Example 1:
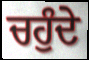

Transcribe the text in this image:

ਚਹੁੰਦੇ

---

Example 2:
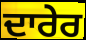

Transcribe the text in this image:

ਦਾਰੇਰ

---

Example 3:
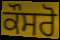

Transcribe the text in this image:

ਕੌਸਰੋ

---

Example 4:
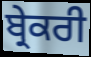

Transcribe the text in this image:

ਬ੍ਰੇਕਰੀ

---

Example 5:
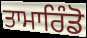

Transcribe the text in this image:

ਤਾਮਾਰਿੰਡੋ